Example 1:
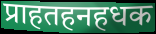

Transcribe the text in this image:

प्राहतहनहधक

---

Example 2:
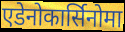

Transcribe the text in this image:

एडेनोकार्सिनोमा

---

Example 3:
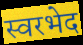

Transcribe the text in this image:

स्वरभेद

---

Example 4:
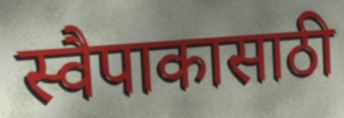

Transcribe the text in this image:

स्वैपाकासाठी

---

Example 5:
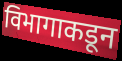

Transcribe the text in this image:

विभागाकडून